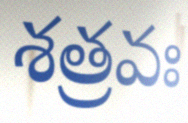
శత్రవః